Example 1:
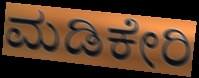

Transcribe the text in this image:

ಮಡಿಕೇರಿ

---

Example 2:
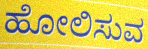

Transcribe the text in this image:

ಹೋಲಿಸುವ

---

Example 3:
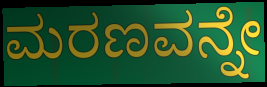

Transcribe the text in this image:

ಮರಣವನ್ನೇ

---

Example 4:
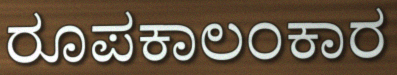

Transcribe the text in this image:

ರೂಪಕಾಲಂಕಾರ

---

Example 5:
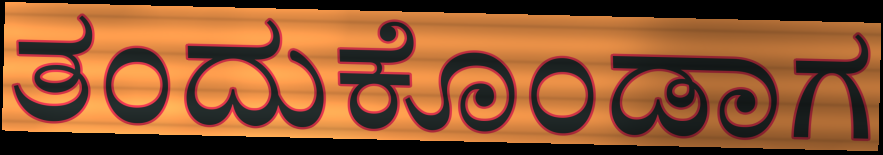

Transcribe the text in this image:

ತಂದುಕೊಂಡಾಗ